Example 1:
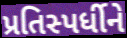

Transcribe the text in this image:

પ્રતિસ્પર્ધીને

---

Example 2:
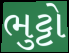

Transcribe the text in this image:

ભુટ્ટો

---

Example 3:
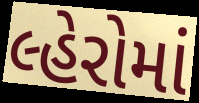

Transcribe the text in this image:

લ્હેરોમાં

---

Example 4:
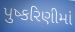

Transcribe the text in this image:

પુષ્કરિણીમાં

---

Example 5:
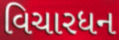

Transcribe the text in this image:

વિચારધન